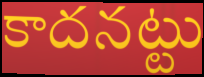
కాదనట్టు